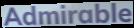
Admirable